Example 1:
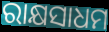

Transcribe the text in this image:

ରାକ୍ଷସାଧମ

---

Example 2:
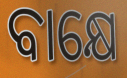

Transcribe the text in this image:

ବାକ୍ଷେ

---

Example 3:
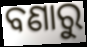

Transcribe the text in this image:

ବଣାରୁ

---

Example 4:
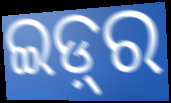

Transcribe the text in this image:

ଇଡ଼୍‍ର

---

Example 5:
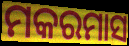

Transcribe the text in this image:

ମକରମାସ